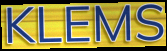
KLEMS